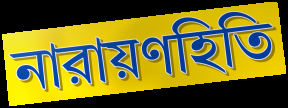
নারায়ণহিতি